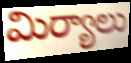
మిర్యాలు